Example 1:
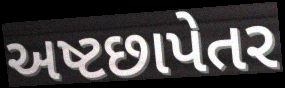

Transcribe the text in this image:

અષ્ટછાપેતર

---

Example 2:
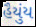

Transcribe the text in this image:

હૈયુંય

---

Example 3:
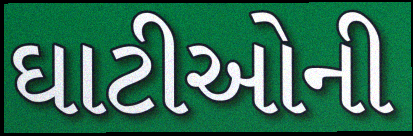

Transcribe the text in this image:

ઘાટીઓની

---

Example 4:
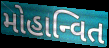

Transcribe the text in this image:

મોહાન્વિત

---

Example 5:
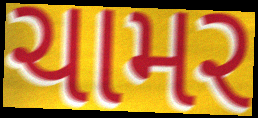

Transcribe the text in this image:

ચામર